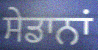
ਸੇਡਾਨਾਂ